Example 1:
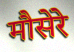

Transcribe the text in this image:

मौसेरे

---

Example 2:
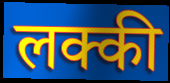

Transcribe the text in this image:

लक्की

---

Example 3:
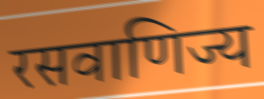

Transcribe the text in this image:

रसवाणिज्य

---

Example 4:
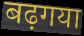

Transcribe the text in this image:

बढ़गया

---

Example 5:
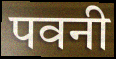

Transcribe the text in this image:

पवनी